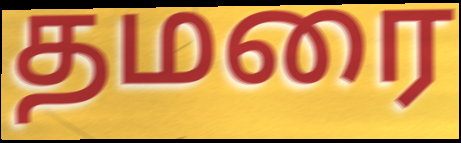
தமரை